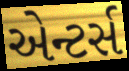
એન્ટર્સ